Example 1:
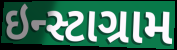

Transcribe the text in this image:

ઇન્સ્ટાગ્રામ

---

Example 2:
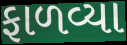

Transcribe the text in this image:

ફાળવ્યા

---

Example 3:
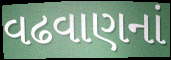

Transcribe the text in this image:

વઢવાણનાં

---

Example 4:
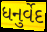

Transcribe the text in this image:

ધનુર્વેદ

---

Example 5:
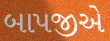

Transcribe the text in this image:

બાપજીએ